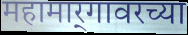
महामार्गावरच्या